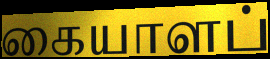
கையாளப்